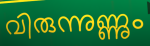
വിരുന്നുണ്ണും